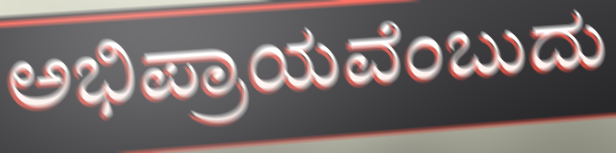
ಅಭಿಪ್ರಾಯವೆಂಬುದು